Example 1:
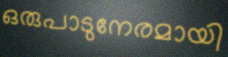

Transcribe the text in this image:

ഒരുപാടുനേരമായി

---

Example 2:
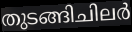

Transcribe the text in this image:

തുടങ്ങിചിലർ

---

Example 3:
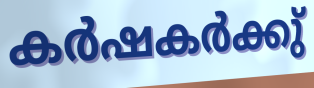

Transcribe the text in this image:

കർഷകർക്കു്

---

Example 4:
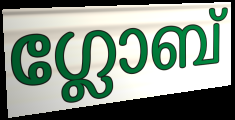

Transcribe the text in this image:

ഗ്ലോബ്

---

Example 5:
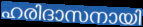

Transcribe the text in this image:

ഹരിദാസനായി